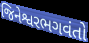
જિનેશ્વરભગવંતો